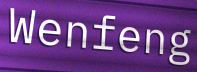
Wenfeng